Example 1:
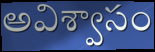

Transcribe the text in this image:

అవిశ్వాసం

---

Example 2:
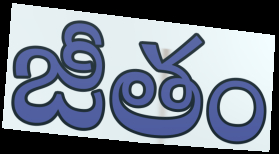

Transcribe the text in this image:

జీతం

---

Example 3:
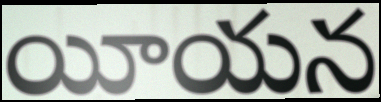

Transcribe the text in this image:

యీయన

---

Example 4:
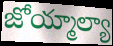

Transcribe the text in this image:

జోయ్మాల్యా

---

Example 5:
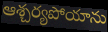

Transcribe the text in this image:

ఆశ్చర్యపోయాను